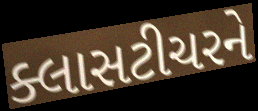
ક્લાસટીચરને